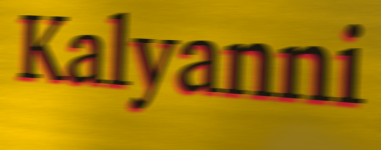
Kalyanni